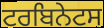
ਟਰਬਿਨੇਟਸ